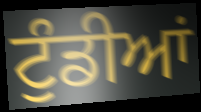
ਟੁੰਡੀਆਂ